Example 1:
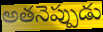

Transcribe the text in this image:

అతనెప్పుడు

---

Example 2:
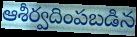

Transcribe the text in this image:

ఆశీర్వదింపబడిన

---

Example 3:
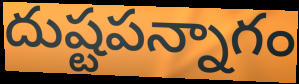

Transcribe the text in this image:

దుష్టపన్నాగం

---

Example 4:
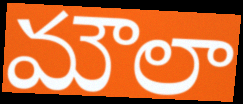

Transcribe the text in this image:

మౌలా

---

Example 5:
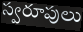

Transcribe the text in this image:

స్వరూపులు